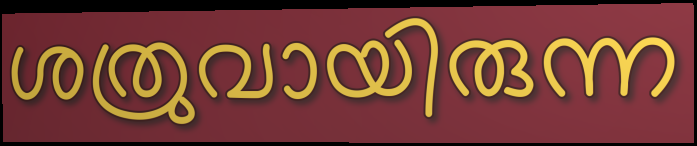
ശത്രുവായിരുന്ന